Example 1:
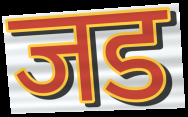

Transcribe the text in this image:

जड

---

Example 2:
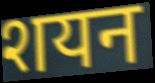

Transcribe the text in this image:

शयन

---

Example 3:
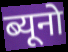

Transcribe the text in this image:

ब्यूनो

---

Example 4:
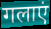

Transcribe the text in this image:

गलाएं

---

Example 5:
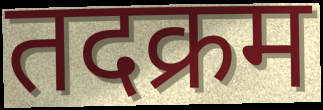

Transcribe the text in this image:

तदक्रम